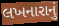
લખનારાનું